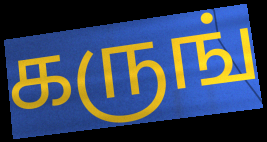
கருங்